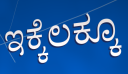
ಇಕ್ಕೆಲಕ್ಕೂ